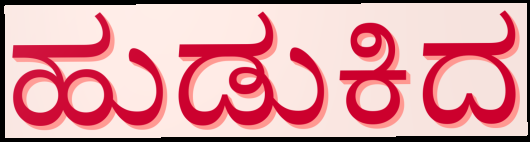
ಹುಡುಕಿದ